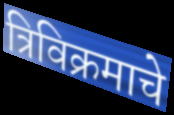
त्रिविक्रमाचे